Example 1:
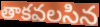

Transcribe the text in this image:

తాకవలసిన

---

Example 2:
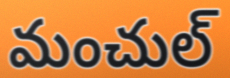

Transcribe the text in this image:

మంచుల్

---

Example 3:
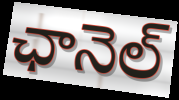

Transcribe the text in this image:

ఛానెల్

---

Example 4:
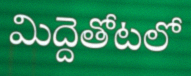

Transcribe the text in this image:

మిద్దెతోటలో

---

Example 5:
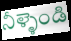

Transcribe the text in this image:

నీళ్ళెండి